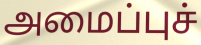
அமைப்புச்